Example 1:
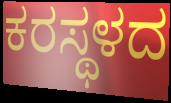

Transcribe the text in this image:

ಕರಸ್ಥಳದ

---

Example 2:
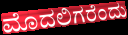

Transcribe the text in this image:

ಮೊದಲಿಗರೆಂದು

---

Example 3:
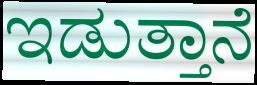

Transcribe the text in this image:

ಇಡುತ್ತಾನೆ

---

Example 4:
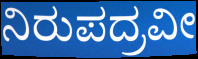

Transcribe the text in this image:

ನಿರುಪದ್ರವೀ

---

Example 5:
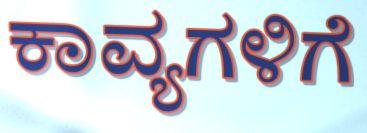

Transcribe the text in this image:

ಕಾವ್ಯಗಳಿಗೆ